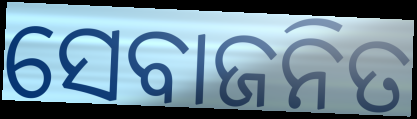
ସେବାଜନିତ